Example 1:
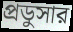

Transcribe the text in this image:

প্রডুসার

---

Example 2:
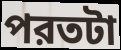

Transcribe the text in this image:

পরতটা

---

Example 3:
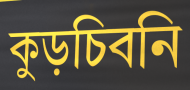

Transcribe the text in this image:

কুড়চিবনি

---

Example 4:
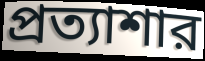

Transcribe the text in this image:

প্রত্যাশার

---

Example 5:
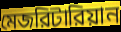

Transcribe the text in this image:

মেজরিটারিয়ান